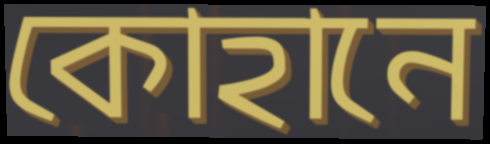
কোহানে